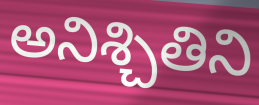
అనిశ్చితిని